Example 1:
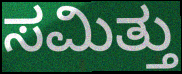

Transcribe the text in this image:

ಸಮಿತ್ತು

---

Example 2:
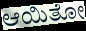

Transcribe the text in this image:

ಆಯಿತೋ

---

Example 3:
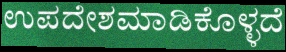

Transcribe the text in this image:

ಉಪದೇಶಮಾಡಿಕೊಳ್ಳದೆ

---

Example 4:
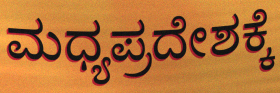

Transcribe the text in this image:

ಮಧ್ಯಪ್ರದೇಶಕ್ಕೆ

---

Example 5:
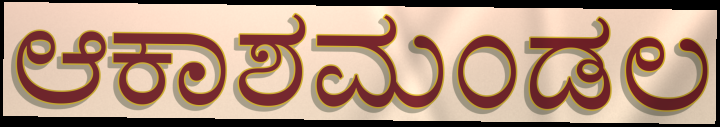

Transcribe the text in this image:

ಆಕಾಶಮಂಡಲ